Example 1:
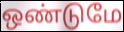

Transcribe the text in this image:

ஒண்டுமே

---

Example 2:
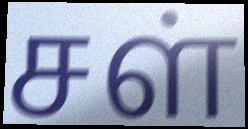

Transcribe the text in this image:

சள்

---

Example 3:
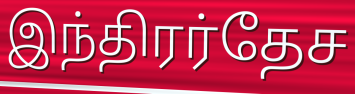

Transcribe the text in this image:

இந்திரர்தேச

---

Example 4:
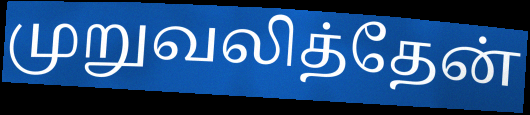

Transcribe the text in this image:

முறுவலித்தேன்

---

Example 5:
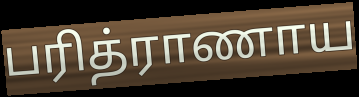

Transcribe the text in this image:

பரித்ராணாய